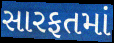
સારફતમાં